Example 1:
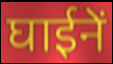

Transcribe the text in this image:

घाईनें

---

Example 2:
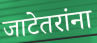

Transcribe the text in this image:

जाटेतरांना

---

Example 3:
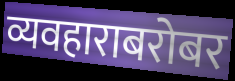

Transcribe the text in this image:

व्यवहाराबरोबर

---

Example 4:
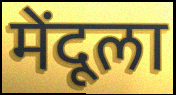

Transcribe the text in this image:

मेंदूला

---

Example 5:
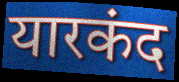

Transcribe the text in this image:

यारकंद